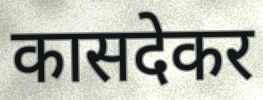
कासदेकर